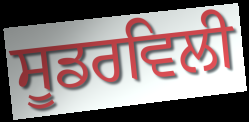
ਸੂਡਰਵਿਲੀ